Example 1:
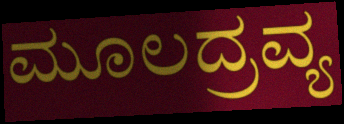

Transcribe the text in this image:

ಮೂಲದ್ರವ್ಯ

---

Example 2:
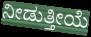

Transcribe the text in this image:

ನೀಡುತ್ತೀಯೆ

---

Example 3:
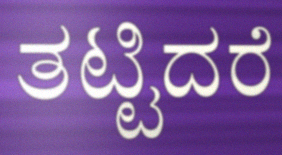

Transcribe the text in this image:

ತಟ್ಟಿದರೆ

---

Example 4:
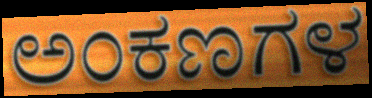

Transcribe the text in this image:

ಅಂಕಣಗಳ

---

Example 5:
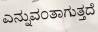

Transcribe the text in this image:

ಎನ್ನುವಂತಾಗುತ್ತದೆ